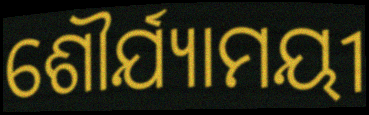
ଶୌର୍ଯ୍ୟାମୟୀ